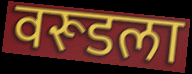
वरूडला